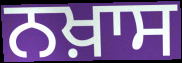
ਨਖ਼ਾਸ